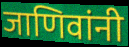
जाणिवांनी